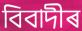
বিবাদীৰ